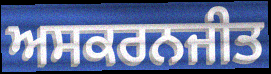
ਅਸਕਰਨਜੀਤ